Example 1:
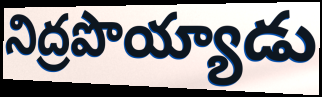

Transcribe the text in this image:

నిద్రపొయ్యాడు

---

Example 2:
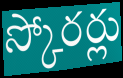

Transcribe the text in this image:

స్కోరర్లు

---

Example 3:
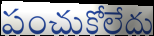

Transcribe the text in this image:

పంచుకోలేదు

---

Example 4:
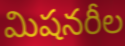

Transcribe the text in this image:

మిషనరీల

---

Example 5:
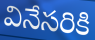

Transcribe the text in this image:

వినేసరికి